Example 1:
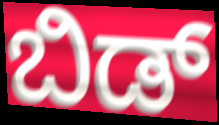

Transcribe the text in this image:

ಬಿಡ್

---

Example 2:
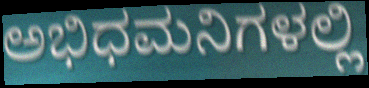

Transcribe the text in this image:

ಅಭಿಧಮನಿಗಳಲ್ಲಿ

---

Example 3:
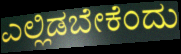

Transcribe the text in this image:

ಎಲ್ಲಿಡಬೇಕೆಂದು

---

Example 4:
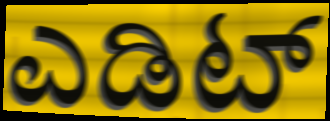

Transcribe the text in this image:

ಎಡಿಟ್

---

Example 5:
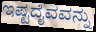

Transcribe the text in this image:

ಇಷ್ಟದೈವವನ್ನು